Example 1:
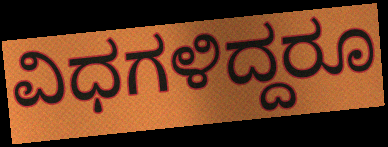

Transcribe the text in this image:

ವಿಧಗಳಿದ್ದರೂ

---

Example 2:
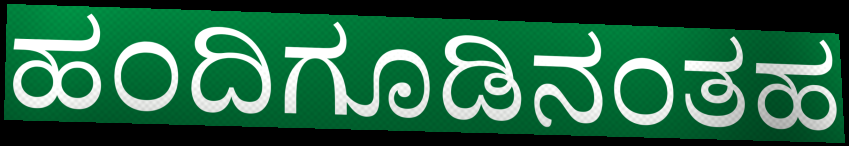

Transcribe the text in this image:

ಹಂದಿಗೂಡಿನಂತಹ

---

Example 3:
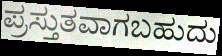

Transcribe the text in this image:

ಪ್ರಸ್ತುತವಾಗಬಹುದು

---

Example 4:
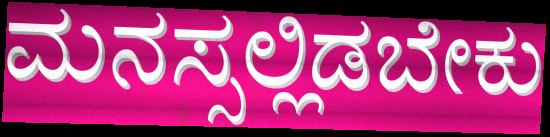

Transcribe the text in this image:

ಮನಸ್ಸಲ್ಲಿಡಬೇಕು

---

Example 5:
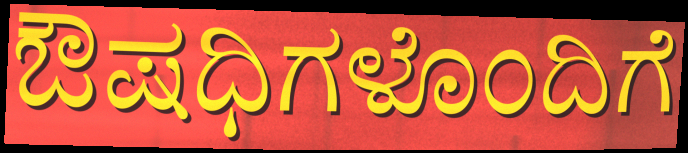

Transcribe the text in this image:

ಔಷಧಿಗಳೊಂದಿಗೆ